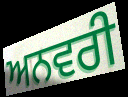
ਅਨਵਰੀ